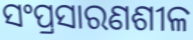
ସଂପ୍ରସାରଣଶୀଳ